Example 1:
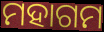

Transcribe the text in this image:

ମହାଗମ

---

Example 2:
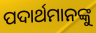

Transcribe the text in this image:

ପଦାର୍ଥମାନଙ୍କୁ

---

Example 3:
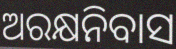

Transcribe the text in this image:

ଅରକ୍ଷନିବାସ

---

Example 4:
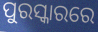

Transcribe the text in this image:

ପୁରସ୍କାରରେ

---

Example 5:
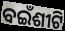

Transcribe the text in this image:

ବଇଁଶୀଟି